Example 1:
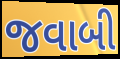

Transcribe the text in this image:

જવાબી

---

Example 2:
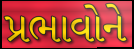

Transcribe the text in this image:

પ્રભાવોને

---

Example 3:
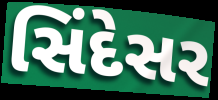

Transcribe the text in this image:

સિંદેસર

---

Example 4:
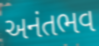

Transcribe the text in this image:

અનંતભવ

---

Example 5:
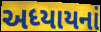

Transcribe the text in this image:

અધ્યાયનાં